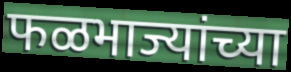
फळभाज्यांच्या